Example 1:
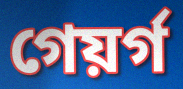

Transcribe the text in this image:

গেয়ৰ্গ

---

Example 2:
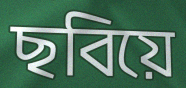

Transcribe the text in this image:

ছবিয়ে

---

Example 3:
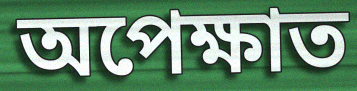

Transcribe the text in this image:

অপেক্ষাত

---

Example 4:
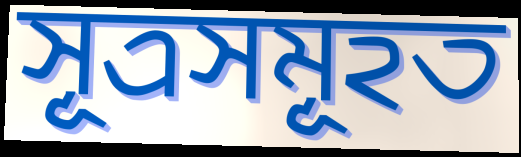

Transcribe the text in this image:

সূত্ৰসমূহত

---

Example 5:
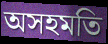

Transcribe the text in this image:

অসহমতি